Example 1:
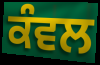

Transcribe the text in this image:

ਕੰਵਲ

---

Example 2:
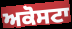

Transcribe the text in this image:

ਅਕੋਸਟਾ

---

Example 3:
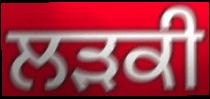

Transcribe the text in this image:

ਲੜਕੀ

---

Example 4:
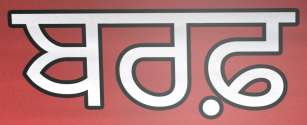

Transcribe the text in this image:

ਬਰਫ਼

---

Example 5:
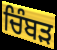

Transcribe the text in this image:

ਚਿੰਬੜ